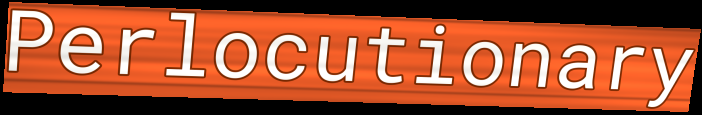
Perlocutionary